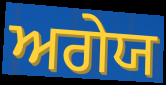
ਅਗੇਯ